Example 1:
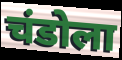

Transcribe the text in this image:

चंडोला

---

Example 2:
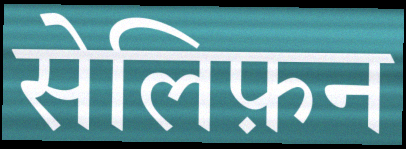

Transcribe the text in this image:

सेलिफ़न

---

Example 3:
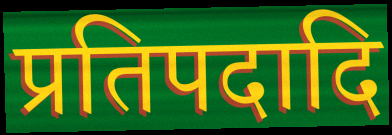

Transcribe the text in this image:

प्रतिपदादि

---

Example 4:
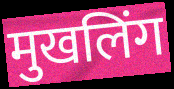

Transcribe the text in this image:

मुखलिंग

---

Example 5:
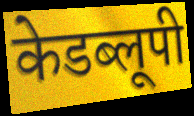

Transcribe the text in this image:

केडब्लूपी